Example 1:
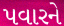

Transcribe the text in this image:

પવારને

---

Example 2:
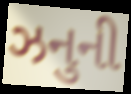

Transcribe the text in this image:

ઝનુની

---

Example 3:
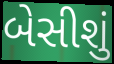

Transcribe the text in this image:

બેસીશું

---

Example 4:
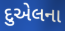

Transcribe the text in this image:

દુએલના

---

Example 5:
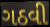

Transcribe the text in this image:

ગઠવી